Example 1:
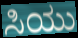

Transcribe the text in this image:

ಸಿಯು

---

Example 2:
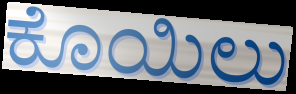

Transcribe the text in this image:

ಕೊಯಿಲು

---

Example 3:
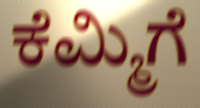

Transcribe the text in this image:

ಕೆಮ್ಮಿಗೆ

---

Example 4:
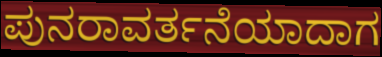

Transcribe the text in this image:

ಪುನರಾವರ್ತನೆಯಾದಾಗ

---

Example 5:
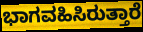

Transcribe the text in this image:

ಭಾಗವಹಿಸಿರುತ್ತಾರೆ